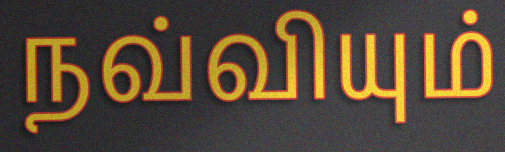
நவ்வியும்